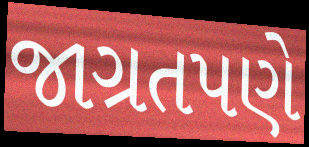
જાગ્રતપણે